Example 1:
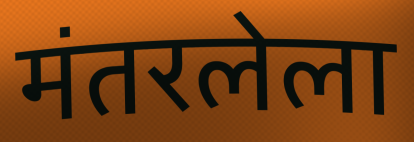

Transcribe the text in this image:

मंतरलेला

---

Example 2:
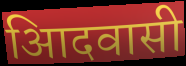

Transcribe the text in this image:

आिदवासी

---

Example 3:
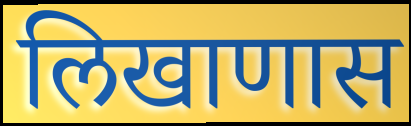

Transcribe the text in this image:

लिखाणास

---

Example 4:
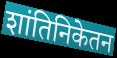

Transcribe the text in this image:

शांतिनिकेतन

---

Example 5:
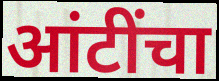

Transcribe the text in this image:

आंटींचा